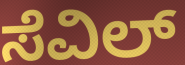
ಸೆವಿಲ್